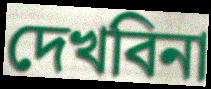
দেখবিনা